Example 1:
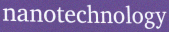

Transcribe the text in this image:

nanotechnology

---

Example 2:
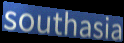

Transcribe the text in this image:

southasia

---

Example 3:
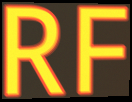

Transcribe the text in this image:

RF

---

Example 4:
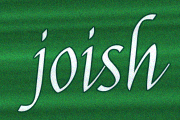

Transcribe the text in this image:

joish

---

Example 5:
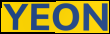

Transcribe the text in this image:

YEON